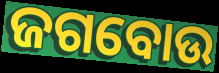
ଜଗବୋଉ